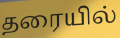
தரையில்